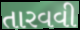
તારવવી